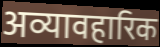
अव्यावहारिक